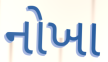
નોખા